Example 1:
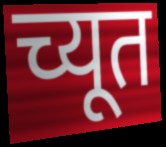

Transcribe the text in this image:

च्यूत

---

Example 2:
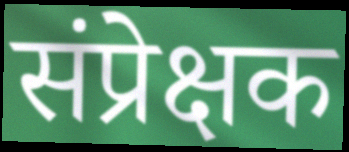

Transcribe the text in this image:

संप्रेक्षक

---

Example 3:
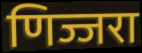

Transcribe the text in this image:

णिज्जरा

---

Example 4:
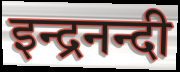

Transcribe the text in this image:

इन्द्रनन्दी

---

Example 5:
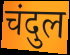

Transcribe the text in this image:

चंदुल